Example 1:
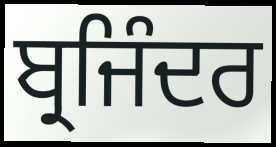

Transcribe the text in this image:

ਬ੍ਰਜਿੰਦਰ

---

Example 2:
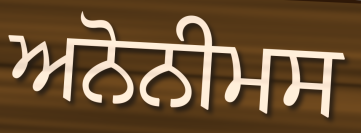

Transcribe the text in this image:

ਅਨੋਨੀਮਸ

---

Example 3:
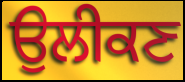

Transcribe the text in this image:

ਉਲੀਕਣ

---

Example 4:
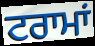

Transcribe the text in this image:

ਟਰਾਮਾਂ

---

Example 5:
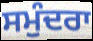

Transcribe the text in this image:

ਸਮੁੰਦਰਾ